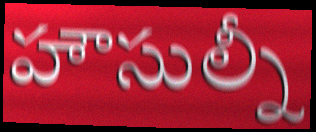
హౌసుల్నీ